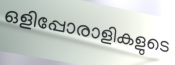
ഒളിപ്പോരാളികളുടെ